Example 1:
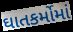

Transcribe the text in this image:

ઘાતકર્મોમાં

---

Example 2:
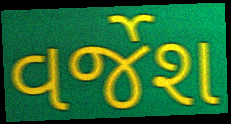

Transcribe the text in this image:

વર્જેશ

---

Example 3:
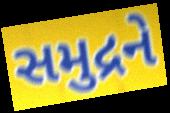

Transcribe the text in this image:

સમુદ્રને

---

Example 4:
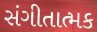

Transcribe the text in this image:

સંગીતાત્મક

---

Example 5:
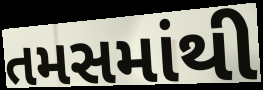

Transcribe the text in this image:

તમસમાંથી